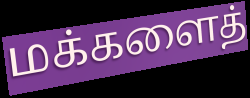
மக்களைத்